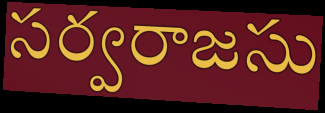
సర్వరాజసు